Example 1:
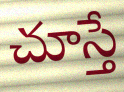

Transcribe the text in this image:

చూస్తే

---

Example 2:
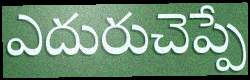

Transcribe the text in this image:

ఎదురుచెప్పే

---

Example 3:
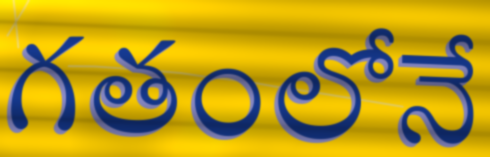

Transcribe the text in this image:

గతంలోనే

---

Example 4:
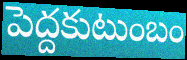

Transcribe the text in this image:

పెద్దకుటుంబం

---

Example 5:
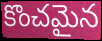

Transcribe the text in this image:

కొంచమైన